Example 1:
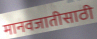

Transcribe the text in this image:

मानवजातीसाठी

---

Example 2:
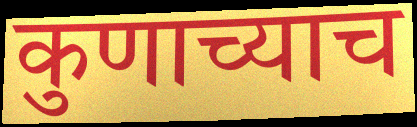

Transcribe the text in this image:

कुणाच्याच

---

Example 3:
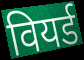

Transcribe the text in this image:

वियर्ड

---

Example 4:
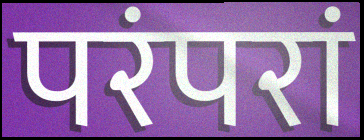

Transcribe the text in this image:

परंपरां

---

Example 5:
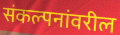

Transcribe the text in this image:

संकल्पनांवरील